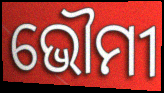
ଭୌମୀ